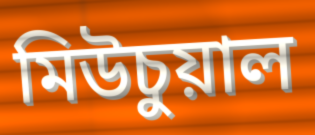
মিউচুয়াল